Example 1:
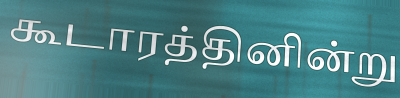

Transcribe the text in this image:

கூடாரத்தினின்று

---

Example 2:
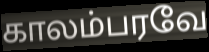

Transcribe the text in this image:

காலம்பரவே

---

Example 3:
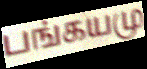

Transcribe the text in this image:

பங்கயமு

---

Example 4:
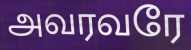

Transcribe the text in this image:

அவரவரே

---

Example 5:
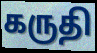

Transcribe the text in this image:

கருதி